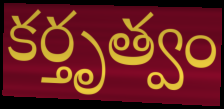
కర్తృత్వం